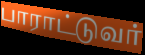
பாராட்டுவர்